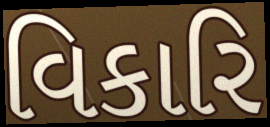
વિકારિ